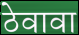
ठेवावा